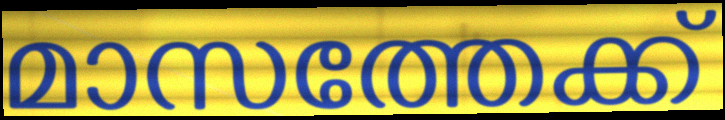
മാസത്തേക്ക്